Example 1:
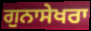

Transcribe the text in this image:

ਗੁਨਾਸੇਖਰਾ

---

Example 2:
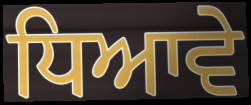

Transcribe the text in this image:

ਧਿਆਵੇ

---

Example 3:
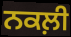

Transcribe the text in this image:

ਨਕਲ਼ੀ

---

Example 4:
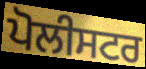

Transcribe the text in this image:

ਪੋਲੀਸਟਰ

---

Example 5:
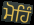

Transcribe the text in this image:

ਮੋਹਿੰ